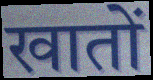
खातों